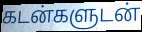
கடன்களுடன்